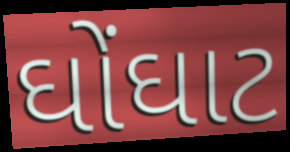
ઘોંઘાટ